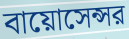
বায়োসেন্সর